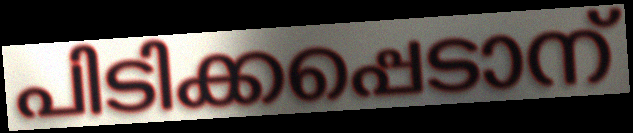
പിടിക്കപ്പെടാന്